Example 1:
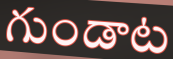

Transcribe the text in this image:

గుండాట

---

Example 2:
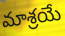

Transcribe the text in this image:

మాశ్రయే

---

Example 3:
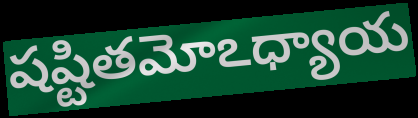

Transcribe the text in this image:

షష్టితమోఽధ్యాయ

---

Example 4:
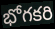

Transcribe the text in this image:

భోగకరి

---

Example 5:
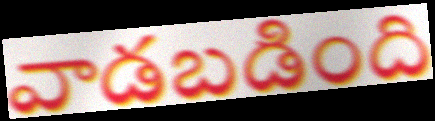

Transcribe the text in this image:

వాడబడింది